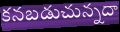
కనబడుచున్నదా